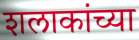
शलाकांच्या